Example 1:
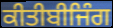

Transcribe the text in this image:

ਕੀਤੀਬੀਜਿੰਗ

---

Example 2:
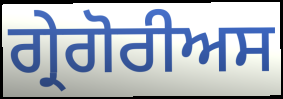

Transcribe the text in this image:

ਗ੍ਰੇਗੋਰੀਅਸ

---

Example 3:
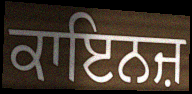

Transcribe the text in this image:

ਕਾਇਨਜ਼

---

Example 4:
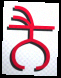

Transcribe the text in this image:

ਨੈ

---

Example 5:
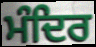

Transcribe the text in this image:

ਮੰਦਿਰ